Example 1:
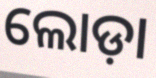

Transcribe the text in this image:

ଲୋଡ଼ା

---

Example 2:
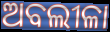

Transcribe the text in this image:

ଅବଲୀଳା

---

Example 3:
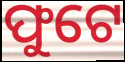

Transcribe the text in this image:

ଫୁଟେ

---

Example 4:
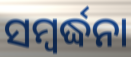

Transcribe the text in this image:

ସମ୍ୱର୍ଦ୍ଧନା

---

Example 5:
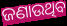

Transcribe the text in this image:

ଜଣାଉଥିବ